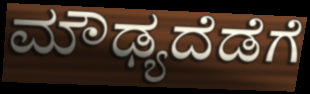
ಮೌಢ್ಯದೆಡೆಗೆ